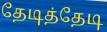
தேடித்தேடி